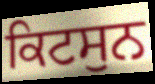
ਕਿਟਸੁਨ